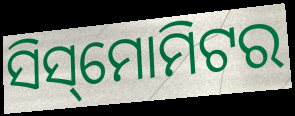
ସିସ୍‌ମୋମିଟର